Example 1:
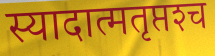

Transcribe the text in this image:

स्यादात्मतृप्तश्च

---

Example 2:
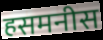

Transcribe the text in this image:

हसमनीस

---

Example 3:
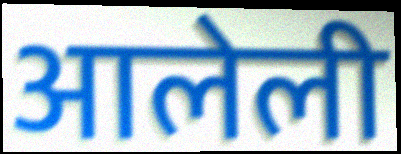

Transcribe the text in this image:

आलेली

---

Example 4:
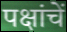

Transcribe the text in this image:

पक्षांचें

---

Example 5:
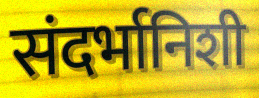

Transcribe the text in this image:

संदर्भानिशी